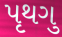
પૃથગુ